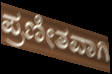
ಪ್ರಣೀತವಾಗಿ